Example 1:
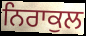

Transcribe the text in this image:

ਨਿਰਾਕੁਲ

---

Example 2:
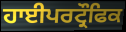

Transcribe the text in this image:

ਹਾਈਪਰਟ੍ਰੌਫਿਕ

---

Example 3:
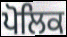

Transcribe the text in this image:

ਪੋਲਿਕ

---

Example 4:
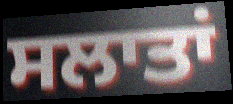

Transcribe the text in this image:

ਸਲਾਤਾਂ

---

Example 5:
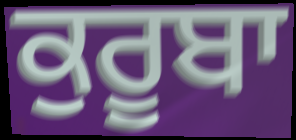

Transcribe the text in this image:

ਕੁਰੂਬਾ